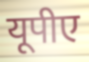
यूपीए